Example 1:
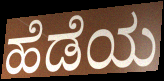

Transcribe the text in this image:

ಹೆಡೆಯ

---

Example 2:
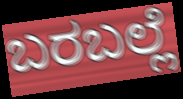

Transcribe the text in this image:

ಬರಬಲ್ಲೆ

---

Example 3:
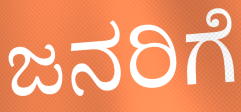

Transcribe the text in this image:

ಜನರಿಗೆ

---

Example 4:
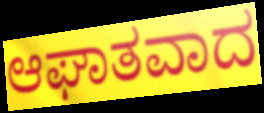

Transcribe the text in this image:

ಆಘಾತವಾದ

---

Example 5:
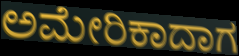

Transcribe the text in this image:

ಅಮೇರಿಕಾದಾಗ